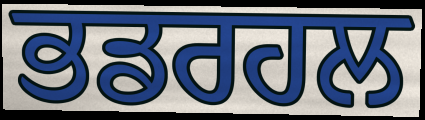
ਭਡਰਹਲ